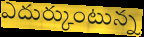
ఎదుర్కుంటున్న